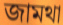
জামথা